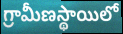
గ్రామీణస్థాయిలో